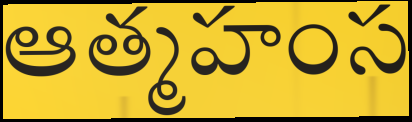
ఆత్మహంస